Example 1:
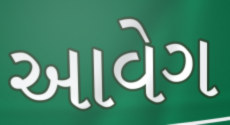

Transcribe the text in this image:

આવેગ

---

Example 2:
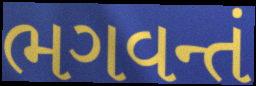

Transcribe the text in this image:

ભગવન્તં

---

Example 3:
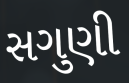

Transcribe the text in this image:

સગુણી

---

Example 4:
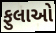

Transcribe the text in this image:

ફુલાઓ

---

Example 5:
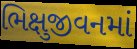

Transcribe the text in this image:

ભિક્ષુજીવનમાં